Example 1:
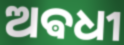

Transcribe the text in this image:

ଅଵଧୀ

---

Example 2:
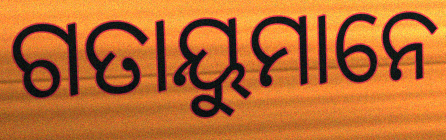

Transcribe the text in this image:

ଗତାୟୁମାନେ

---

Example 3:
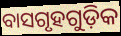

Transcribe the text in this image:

ବାସଗୃହଗୁଡ଼ିକ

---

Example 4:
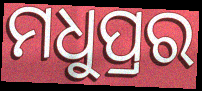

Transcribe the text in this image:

ମଧୁପ୍ରର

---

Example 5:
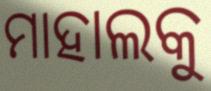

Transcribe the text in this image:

ମାହାଲକୁ